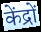
केंद्रों